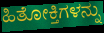
ಹಿತೋಕ್ತಿಗಳನ್ನು